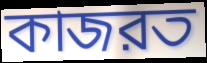
কাজরত